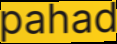
pahad